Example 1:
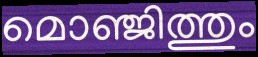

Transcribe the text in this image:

മൊഞ്ജിത്തും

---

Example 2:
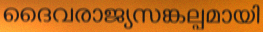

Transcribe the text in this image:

ദൈവരാജ്യസങ്കല്പമായി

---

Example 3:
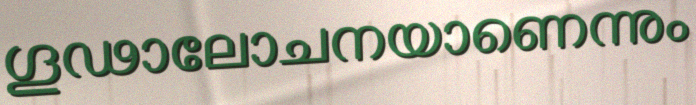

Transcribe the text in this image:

ഗൂഢാലോചനയാണെന്നും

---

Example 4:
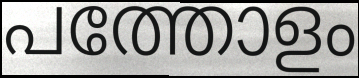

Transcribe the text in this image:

പത്തോളം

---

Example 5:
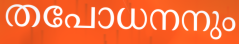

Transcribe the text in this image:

തപോധനനും